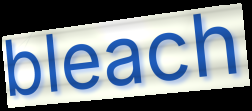
bleach